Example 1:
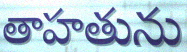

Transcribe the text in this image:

తాహతును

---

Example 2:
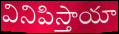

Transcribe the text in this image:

వినిపిస్తాయా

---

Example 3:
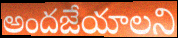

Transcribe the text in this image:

అందజేయాలని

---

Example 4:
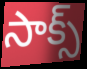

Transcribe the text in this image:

సాక్స్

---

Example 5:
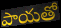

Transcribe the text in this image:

పాయతో